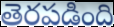
తెరపడింది